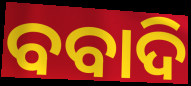
ବବାଦି